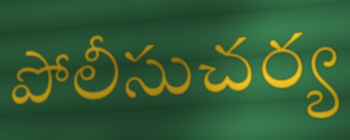
పోలీసుచర్య